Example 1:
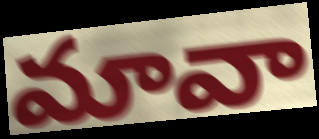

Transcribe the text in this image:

మావా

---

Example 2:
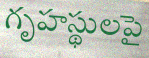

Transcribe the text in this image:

గృహస్థులపై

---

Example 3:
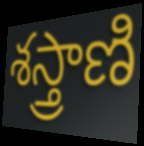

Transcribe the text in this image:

శస్త్రాణి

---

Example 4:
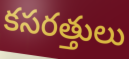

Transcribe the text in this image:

కసరత్తులు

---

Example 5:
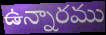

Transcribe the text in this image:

ఉన్నారము